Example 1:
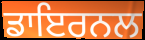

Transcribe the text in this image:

ਡਾਇਰਨਲ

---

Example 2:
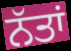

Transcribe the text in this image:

ਨੱਤਾਂ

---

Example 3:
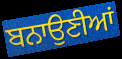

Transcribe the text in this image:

ਬਨਾਉਣੀਆਂ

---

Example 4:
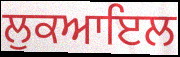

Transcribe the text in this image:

ਲੁਕਆਇਲ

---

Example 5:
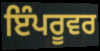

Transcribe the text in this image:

ਇੰਪਰੂਵਰ